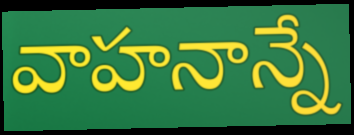
వాహనాన్నే